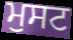
ਮੁਸਟ